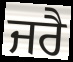
ਜਰੈ